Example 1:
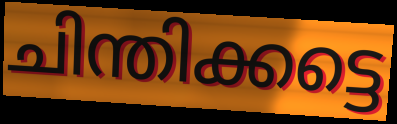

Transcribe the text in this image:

ചിന്തിക്കട്ടെ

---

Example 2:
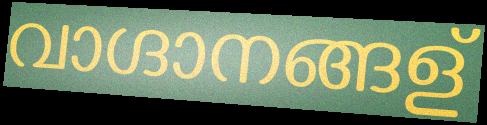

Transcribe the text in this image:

വാഗ്ദാനങ്ങള്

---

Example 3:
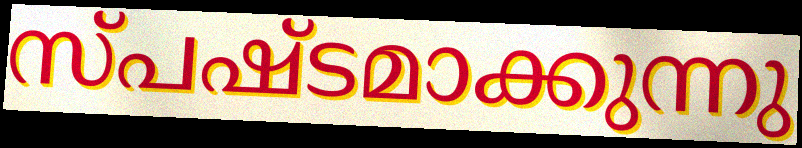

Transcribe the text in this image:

സ്പഷ്ടമാക്കുന്നു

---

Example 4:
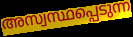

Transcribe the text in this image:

അസ്വസ്ഥപ്പെടുന്ന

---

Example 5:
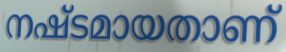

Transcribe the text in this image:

നഷ്ടമായതാണ്